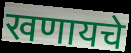
खणायचे